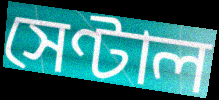
সেণ্টাল